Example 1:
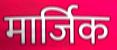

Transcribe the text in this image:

मार्जिक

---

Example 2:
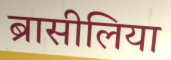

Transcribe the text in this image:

ब्रासीलिया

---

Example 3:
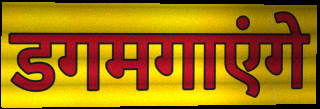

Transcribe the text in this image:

डगमगाएंगे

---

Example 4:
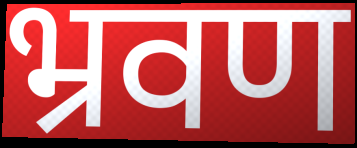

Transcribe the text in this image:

भ्रवण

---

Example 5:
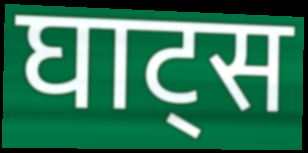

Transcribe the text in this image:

घाट्स